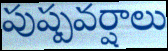
పుష్పవర్షాలు